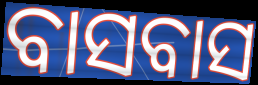
ବାସବାସ